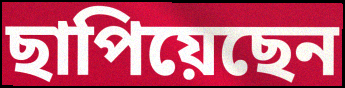
ছাপিয়েছেন